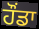
ਹੌਂਡਾ